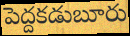
పెద్దకడుబూరు